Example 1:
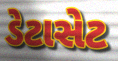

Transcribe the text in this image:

ડેટાસેટ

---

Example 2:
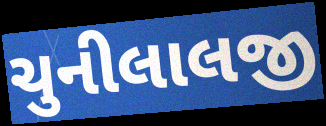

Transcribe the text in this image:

ચુનીલાલજી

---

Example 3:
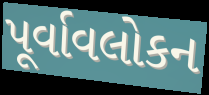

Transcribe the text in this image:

પૂર્વાવલોકન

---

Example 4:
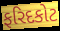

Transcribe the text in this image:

ફરિદકોટ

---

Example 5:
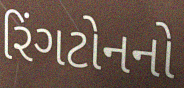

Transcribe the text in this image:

રિંગટોનનો